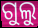
ଗୁଲୁ